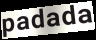
padada